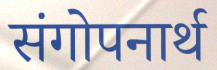
संगोपनार्थ